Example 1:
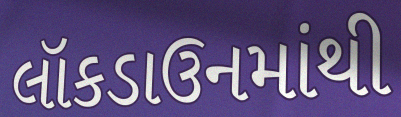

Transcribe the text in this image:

લૉકડાઉનમાંથી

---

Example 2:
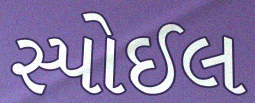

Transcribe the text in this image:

સ્પોઈલ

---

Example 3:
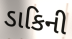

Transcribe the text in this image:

ડાકિની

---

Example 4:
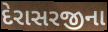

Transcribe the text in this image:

દેરાસરજીના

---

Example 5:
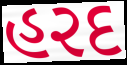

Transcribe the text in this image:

હરદ